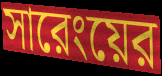
সারেংয়ের